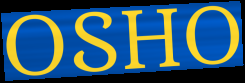
OSHO